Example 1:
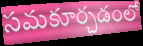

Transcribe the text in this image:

సమకూర్చడంలో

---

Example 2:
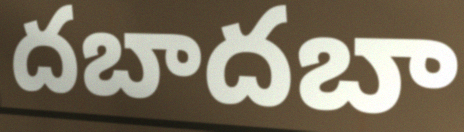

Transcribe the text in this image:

దబాదబా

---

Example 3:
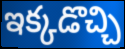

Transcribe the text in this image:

ఇక్కడొచ్చి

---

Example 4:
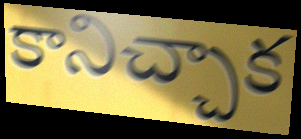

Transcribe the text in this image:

కానిచ్చాక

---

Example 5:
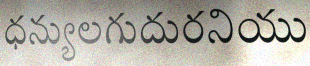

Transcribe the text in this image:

ధన్యులగుదురనియు